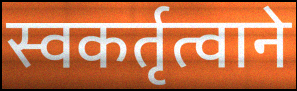
स्वकर्तृत्वाने